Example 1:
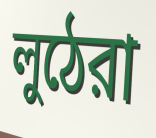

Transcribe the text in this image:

লুঠেরা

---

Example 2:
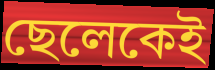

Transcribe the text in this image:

ছেলেকেই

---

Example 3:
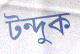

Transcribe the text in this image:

টন্দুক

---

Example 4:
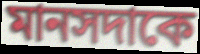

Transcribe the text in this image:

মানসদাকে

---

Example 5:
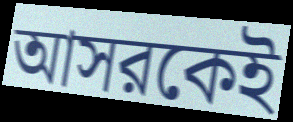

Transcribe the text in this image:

আসরকেই